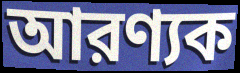
আরণ্যক